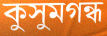
কুসুমগন্ধ